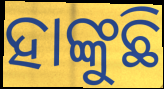
ହାଙ୍କୁଛି